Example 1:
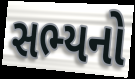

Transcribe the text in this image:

સભ્યનો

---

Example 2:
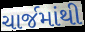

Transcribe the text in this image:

ચાર્જમાંથી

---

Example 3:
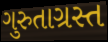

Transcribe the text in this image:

ગુરુતાગ્રસ્ત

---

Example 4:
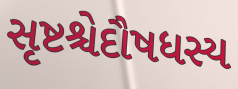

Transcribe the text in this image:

સૃષ્ટશ્ચેદૌષધસ્ય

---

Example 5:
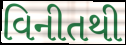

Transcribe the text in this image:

વિનીતથી